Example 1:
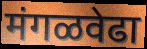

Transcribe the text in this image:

मंगळवेढा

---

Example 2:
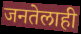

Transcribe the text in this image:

जनतेलाही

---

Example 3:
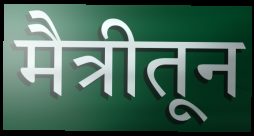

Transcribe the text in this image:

मैत्रीतून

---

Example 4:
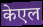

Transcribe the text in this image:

केएल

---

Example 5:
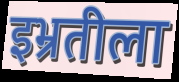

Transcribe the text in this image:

इभ्रतीला